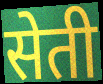
सेती